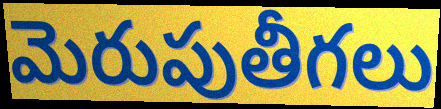
మెరుపుతీగలు